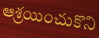
ఆశ్రయించుకొని